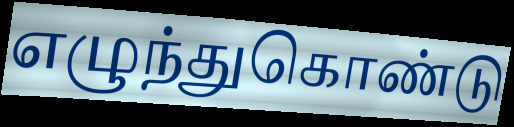
எழுந்துகொண்டு